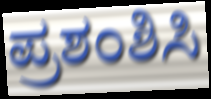
ಪ್ರಶಂಶಿಸಿ